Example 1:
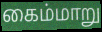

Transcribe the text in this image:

கைம்மாறு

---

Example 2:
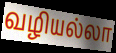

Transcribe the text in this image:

வழியல்லா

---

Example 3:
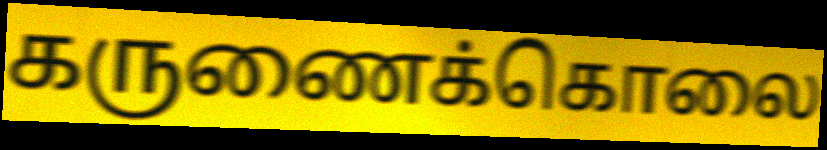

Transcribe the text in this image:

கருணைக்கொலை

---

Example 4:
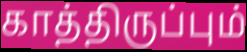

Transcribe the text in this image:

காத்திருப்பும்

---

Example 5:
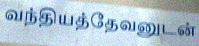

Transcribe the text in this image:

வந்தியத்தேவனுடன்